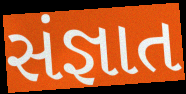
સંજ્ઞાત